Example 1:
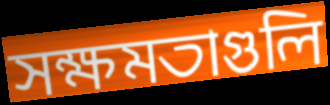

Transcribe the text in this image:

সক্ষমতাগুলি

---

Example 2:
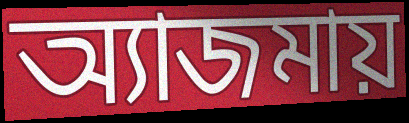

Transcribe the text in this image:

অ্যাজমায়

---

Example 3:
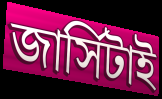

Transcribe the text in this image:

জার্সিটাই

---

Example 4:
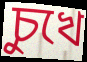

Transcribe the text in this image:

চুখে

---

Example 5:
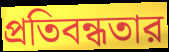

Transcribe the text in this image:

প্রতিবন্ধতার